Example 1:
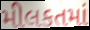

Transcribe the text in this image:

મીલકતમાં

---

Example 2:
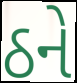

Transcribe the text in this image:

ઠને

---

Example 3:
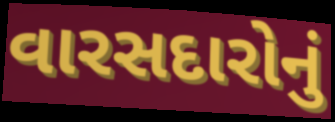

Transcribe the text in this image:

વારસદારોનું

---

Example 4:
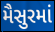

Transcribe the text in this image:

મૈસુરમાં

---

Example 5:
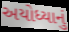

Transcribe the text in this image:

અયોધ્યાનું